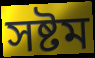
সষ্টম